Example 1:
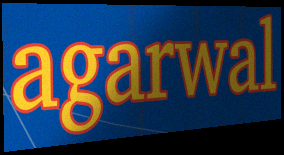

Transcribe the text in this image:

agarwal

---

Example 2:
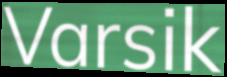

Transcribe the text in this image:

Varsik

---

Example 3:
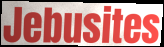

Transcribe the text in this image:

Jebusites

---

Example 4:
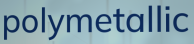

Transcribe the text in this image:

polymetallic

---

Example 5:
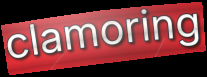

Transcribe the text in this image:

clamoring